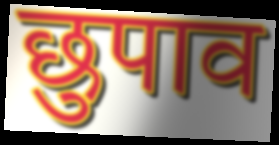
छुपाव